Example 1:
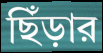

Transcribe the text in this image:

ছিঁড়ার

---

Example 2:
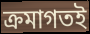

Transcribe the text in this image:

ক্রমাগতই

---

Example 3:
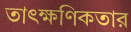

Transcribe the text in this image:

তাৎক্ষণিকতার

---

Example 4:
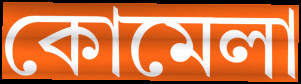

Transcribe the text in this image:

কোমেলা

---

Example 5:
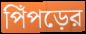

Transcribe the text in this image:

পিঁপড়ের